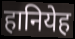
हानियेह